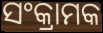
ସଂକ୍ରାମକ